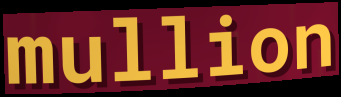
mullion